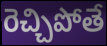
రెచ్చిపోతే